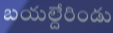
బయల్దేరిండు